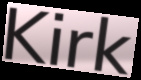
Kirk